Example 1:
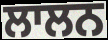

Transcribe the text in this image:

ਲਾਲਨ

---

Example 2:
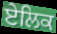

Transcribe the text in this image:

ਏਲਿਕ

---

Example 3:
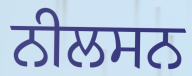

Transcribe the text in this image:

ਨੀਲਸਨ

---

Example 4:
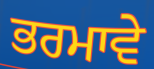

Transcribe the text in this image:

ਭਰਮਾਵੇ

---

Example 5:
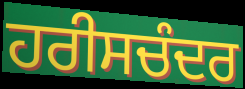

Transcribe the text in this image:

ਹਰੀਸਚੰਦਰ